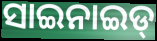
ସାଇନାଇଡ୍